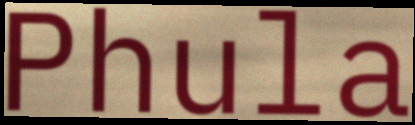
Phula